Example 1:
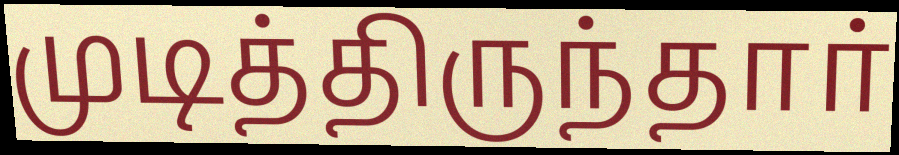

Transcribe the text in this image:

முடித்திருந்தார்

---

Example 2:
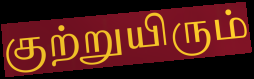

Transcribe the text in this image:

குற்றுயிரும்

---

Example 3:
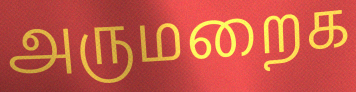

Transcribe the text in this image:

அருமறைக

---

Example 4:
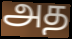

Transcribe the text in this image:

அத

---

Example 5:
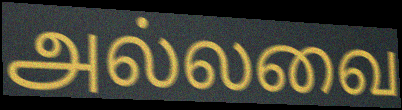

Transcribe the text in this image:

அல்லவை